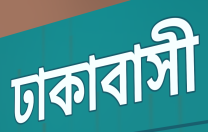
ঢাকাবাসী